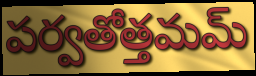
పర్వతోత్తమమ్